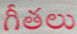
గీతలు